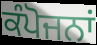
ਕੰਪੋਜਨਾਂ